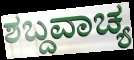
ಶಬ್ದವಾಚ್ಯ